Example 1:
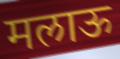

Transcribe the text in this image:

मलाऊ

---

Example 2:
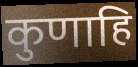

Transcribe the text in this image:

कुणाहि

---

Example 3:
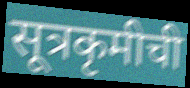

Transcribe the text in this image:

सूत्रकृमीची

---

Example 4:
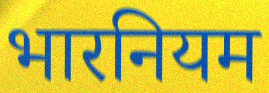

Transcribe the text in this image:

भारनियम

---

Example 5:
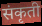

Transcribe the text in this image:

संकृती